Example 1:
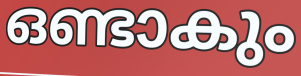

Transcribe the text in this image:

ഒണ്ടാകും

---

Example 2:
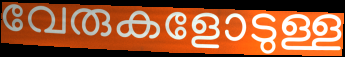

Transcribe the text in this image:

വേരുകളോടുള്ള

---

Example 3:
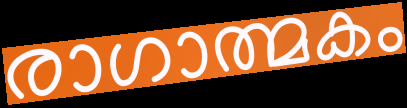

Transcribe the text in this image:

രാഗാത്മകം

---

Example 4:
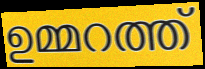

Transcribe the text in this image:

ഉമ്മറത്ത്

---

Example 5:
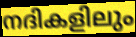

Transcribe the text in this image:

നദികളിലും